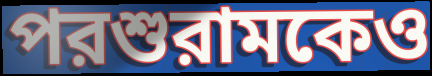
পরশুরামকেও